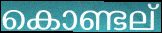
കൊണ്ടല്